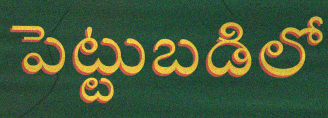
పెట్టుబడిలో